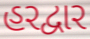
હરદ્વાર